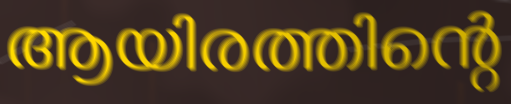
ആയിരത്തിന്റെ